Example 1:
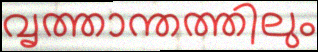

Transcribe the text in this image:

വൃത്താന്തത്തിലും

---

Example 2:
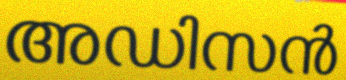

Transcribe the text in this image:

അഡിസൻ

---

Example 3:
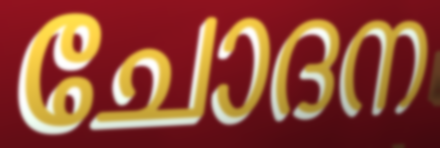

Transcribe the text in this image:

ചോദന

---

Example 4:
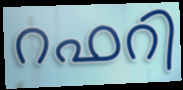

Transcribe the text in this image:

റഫറി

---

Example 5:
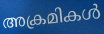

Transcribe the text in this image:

അക്രമികൾ